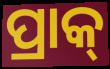
ପ୍ରାକ୍